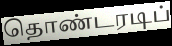
தொண்டரடிப்